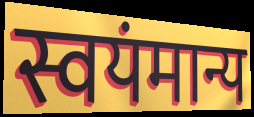
स्वयंमान्य